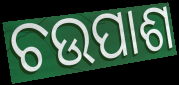
ଚଉପାଶ